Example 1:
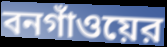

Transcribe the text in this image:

বনগাঁওয়ের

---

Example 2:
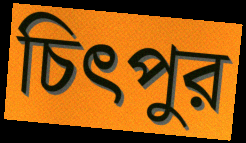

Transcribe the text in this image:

চিৎপুর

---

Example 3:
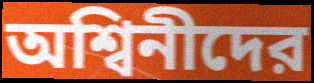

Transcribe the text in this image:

অশ্বিনীদের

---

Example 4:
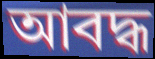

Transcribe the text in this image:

আবদ্ধ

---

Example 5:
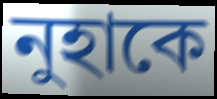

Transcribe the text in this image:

নুহাকে